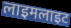
लाइमलाइट